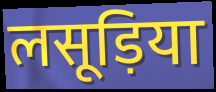
लसूड़िया